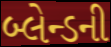
બ્લેન્ડની